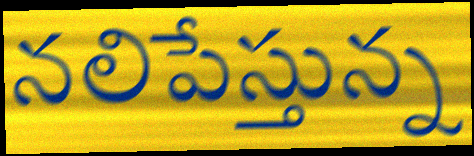
నలిపేస్తున్న